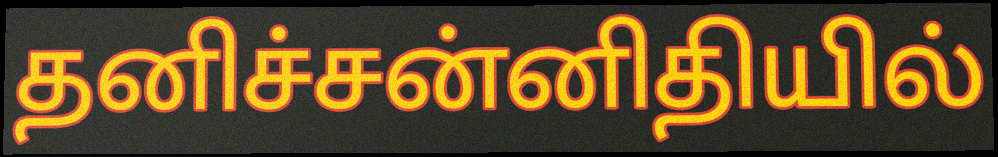
தனிச்சன்னிதியில்